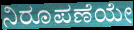
ನಿರೂಪಣೆಯೇ